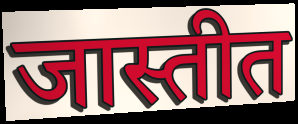
जास्तीत